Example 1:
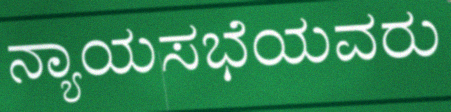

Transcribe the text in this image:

ನ್ಯಾಯಸಭೆಯವರು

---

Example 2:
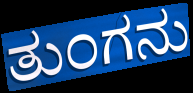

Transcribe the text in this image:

ತುಂಗನು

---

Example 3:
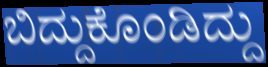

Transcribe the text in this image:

ಬಿದ್ದುಕೊಂಡಿದ್ದು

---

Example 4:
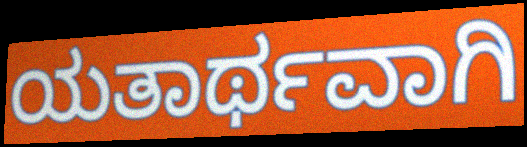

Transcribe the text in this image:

ಯತಾರ್ಥವಾಗಿ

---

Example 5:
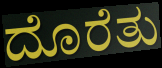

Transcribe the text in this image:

ದೊರೆತು